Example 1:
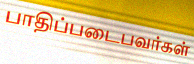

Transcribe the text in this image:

பாதிப்படைபவர்கள்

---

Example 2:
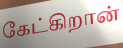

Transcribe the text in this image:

கேட்கிறான்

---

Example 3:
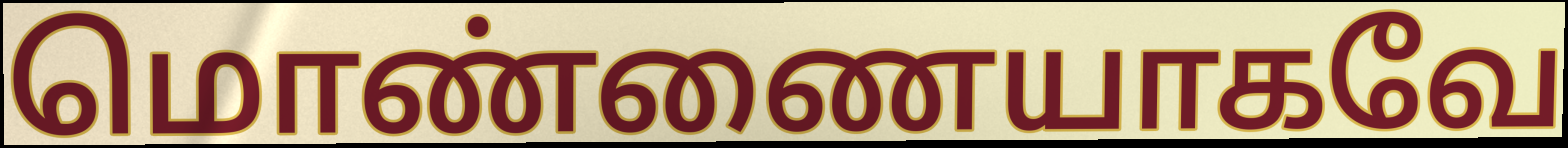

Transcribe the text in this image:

மொண்ணையாகவே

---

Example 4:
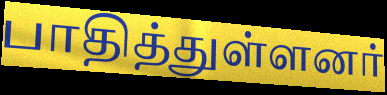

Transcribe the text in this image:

பாதித்துள்ளனர்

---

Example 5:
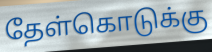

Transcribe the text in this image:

தேள்கொடுக்கு